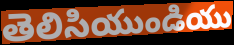
తెలిసియుండియు